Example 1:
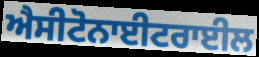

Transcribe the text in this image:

ਐਸੀਟੋਨਾਈਟਰਾਈਲ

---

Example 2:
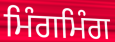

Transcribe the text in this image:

ਮਿੰਗਮਿੰਗ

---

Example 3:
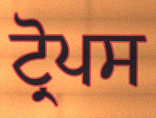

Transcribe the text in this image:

ਟ੍ਰੋਪਸ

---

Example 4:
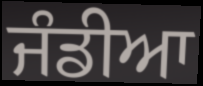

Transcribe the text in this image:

ਜੰਡੀਆ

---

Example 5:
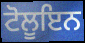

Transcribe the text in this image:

ਟੋਲੂਇਨ